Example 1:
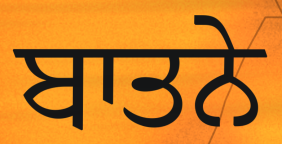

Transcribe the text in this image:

ਬਾਤਨੇ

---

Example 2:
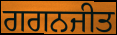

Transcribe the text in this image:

ਗਗਨਜੀਤ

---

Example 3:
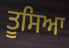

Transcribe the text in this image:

ਤੂਸਿਆ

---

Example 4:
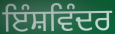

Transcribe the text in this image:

ਇੰਸ਼ਵਿੰਦਰ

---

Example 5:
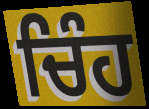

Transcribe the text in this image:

ਚਿੰਹ